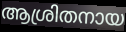
ആശ്രിതനായ